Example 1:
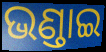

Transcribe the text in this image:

ଭଣ୍ଡାଇ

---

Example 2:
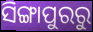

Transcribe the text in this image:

ସିଙ୍ଗାପୁରରୁ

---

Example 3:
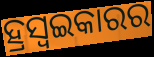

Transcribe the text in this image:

ହ୍ରସ୍ୱଇକାରର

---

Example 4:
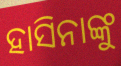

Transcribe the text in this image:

ହାସିନାଙ୍କୁ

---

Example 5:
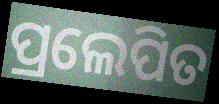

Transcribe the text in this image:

ପ୍ରଲେପିତ